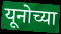
यूनोच्या